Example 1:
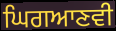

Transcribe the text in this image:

ਘਿਗਆਣਵੀ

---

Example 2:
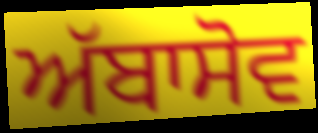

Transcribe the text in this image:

ਅੱਬਾਸੋਵ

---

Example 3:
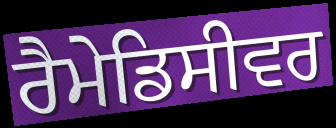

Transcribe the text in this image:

ਰੈਮੇਡਿਸੀਵਰ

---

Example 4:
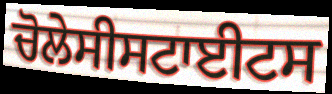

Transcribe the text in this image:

ਚੋਲੇਸੀਸਟਾਈਟਸ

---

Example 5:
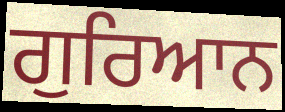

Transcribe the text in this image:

ਗੁਰਿਆਨ